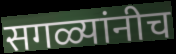
सगळ्यांनीच